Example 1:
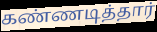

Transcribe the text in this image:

கண்ணடித்தார்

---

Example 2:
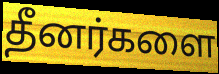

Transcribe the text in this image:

தீனர்களை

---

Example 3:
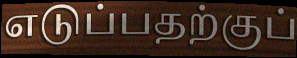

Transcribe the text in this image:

எடுப்பதற்குப்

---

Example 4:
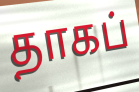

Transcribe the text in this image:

தாகப்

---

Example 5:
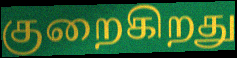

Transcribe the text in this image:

குறைகிறது